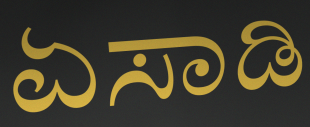
ಏಸಾಡಿ